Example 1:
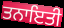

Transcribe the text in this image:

ਤਨਾਇਤੀ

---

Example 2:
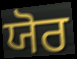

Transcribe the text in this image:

ਯੋਰ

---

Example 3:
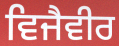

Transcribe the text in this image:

ਵਿਜੈਵੀਰ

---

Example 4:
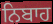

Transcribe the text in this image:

ਨਿਬਾਹ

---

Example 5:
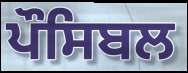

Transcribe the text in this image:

ਪੌਸਿਬਲ